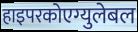
हाइपरकोएग्युलेबल